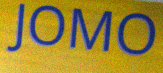
JOMO